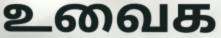
உவைக